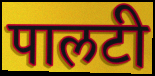
पालटी